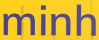
minh